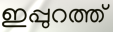
ഇപ്പുറത്ത്